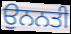
ਉਨਨਤੀ